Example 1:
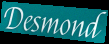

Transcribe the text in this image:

Desmond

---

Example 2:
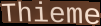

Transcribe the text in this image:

Thieme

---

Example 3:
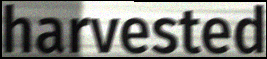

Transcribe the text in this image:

harvested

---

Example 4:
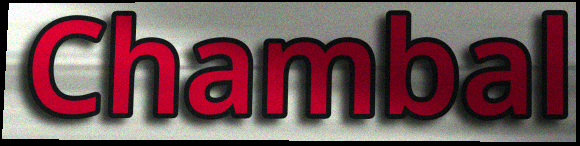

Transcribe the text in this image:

Chambal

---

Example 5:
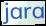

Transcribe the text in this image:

jara